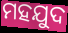
ମହଯୁଦ